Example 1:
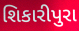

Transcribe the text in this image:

શિકારીપુરા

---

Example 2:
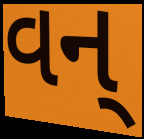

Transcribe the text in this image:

વન્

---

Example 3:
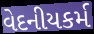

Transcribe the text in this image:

વેદનીયકર્મ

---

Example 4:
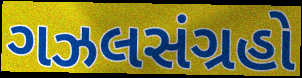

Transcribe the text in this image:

ગઝલસંગ્રહો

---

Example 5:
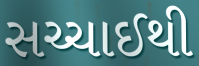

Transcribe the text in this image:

સચ્ચાઈથી